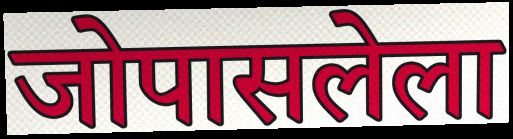
जोपासलेला